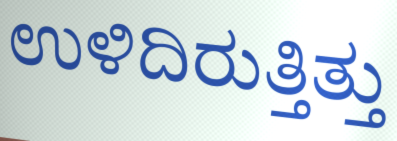
ಉಳಿದಿರುತ್ತಿತ್ತು